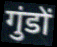
गुंडों